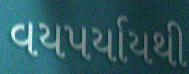
વયપર્યાયથી